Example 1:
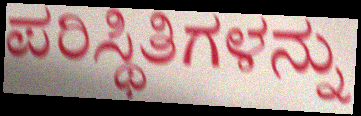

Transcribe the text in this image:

ಪರಿಸ್ಥಿತಿಗಳನ್ನು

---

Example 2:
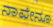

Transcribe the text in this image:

ನಾವೇನೂ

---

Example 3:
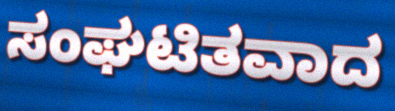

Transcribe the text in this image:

ಸಂಘಟಿತವಾದ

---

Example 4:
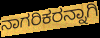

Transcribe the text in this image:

ನಾಗರಿಕರನ್ನಾಗಿ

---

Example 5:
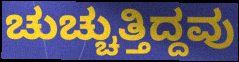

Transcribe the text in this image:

ಚುಚ್ಚುತ್ತಿದ್ದವು